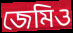
জেমিও